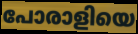
പോരാളിയെ